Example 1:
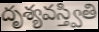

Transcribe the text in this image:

దృశ్యవస్త్వితి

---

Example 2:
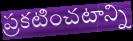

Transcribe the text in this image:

ప్రకటించటాన్ని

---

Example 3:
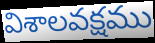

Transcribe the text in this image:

విశాలవక్షము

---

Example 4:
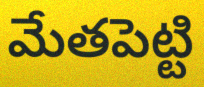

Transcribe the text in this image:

మేతపెట్టి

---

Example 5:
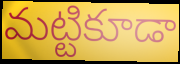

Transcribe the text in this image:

మట్టికూడా